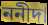
ননীদা